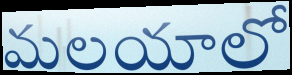
మలయాలో